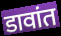
डावांत